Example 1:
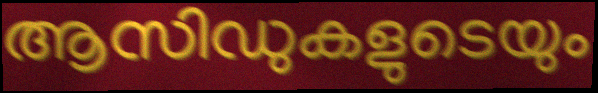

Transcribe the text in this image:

ആസിഡുകളുടെയും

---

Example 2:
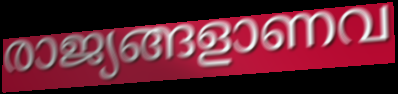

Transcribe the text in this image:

രാജ്യങ്ങളാണവ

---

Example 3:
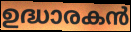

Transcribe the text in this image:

ഉദ്ധാരകൻ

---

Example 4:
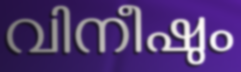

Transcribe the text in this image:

വിനീഷും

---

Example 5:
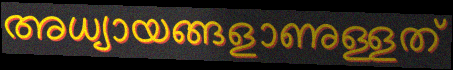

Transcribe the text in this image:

അധ്യായങ്ങളാണുള്ളത്